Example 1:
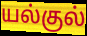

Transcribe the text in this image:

யல்குல்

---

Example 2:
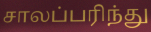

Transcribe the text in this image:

சாலப்பரிந்து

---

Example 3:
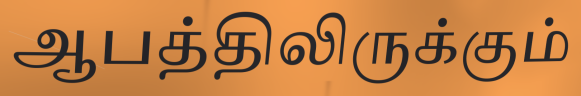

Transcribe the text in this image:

ஆபத்திலிருக்கும்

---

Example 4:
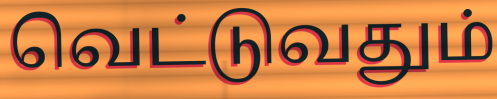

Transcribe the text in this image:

வெட்டுவதும்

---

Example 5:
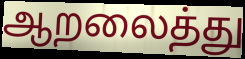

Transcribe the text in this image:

ஆறலைத்து